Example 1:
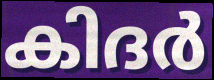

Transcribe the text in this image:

കിദർ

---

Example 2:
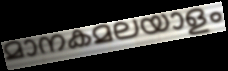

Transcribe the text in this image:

മാനകമലയാളം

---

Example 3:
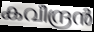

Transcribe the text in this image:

കവീന്ദ്രൻ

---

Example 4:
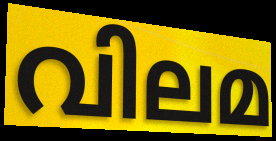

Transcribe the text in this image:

വിലമ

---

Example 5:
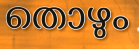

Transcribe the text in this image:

തൊഴും